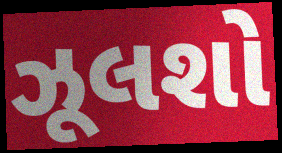
ઝૂલશો